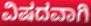
ವಿಷದವಾಗಿ